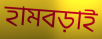
হামবড়াই